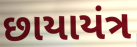
છાયાયંત્ર